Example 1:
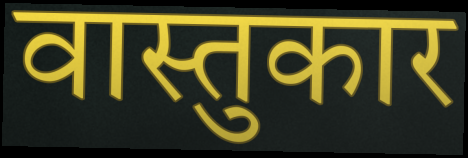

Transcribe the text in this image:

वास्तुकार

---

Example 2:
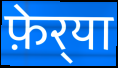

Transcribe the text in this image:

फ़ेर्‍या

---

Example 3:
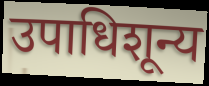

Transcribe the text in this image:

उपाधिशून्य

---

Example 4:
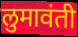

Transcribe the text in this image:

लुमावंती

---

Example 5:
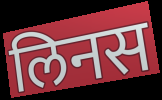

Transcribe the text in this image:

लिनस